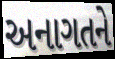
અનાગતને